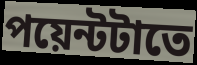
পয়েন্টটাতে